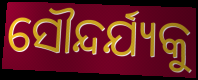
ସୌନ୍ଦର୍ଯ୍ୟକୁ